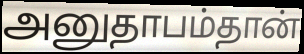
அனுதாபம்தான்